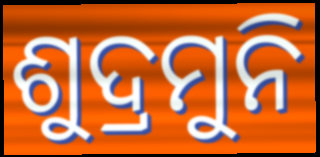
ଶୁଦ୍ରମୁନି